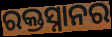
ରକ୍ତସ୍ନାନର